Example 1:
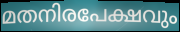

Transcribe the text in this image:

മതനിരപേക്ഷവും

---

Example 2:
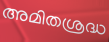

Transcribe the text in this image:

അമിതശ്രദ്ധ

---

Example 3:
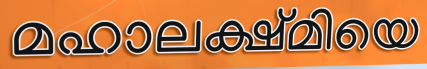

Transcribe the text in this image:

മഹാലക്ഷ്മിയെ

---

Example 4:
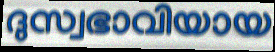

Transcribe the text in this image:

ദുസ്വഭാവിയായ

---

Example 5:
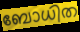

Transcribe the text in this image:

ബോധിത